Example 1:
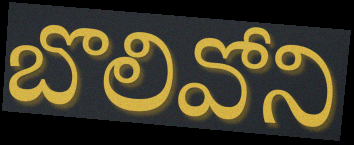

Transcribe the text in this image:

బొలివోని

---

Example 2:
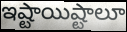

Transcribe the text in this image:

ఇష్టాయిష్టాలూ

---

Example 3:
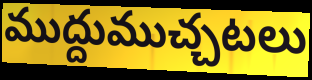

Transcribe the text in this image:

ముద్దుముచ్చటలు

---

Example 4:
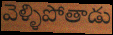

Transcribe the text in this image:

వెళ్ళిపోతాడు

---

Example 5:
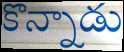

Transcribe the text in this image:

కొన్నాడు